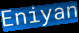
Eniyan